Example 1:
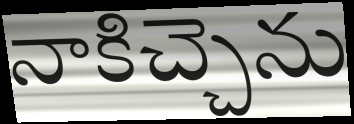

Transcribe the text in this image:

నాకిచ్చెను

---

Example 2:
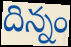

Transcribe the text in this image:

దిన్నం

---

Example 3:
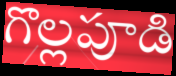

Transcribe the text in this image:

గొల్లపూడి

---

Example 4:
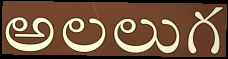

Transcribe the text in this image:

అలలుగ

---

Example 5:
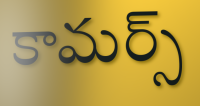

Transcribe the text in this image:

కామర్స్